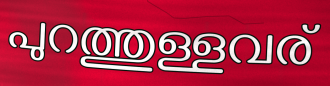
പുറത്തുള്ളവര്